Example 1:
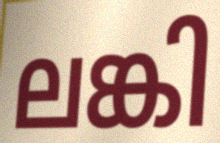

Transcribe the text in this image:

ലങ്കി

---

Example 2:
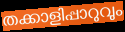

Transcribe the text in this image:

തക്കാളിപ്പാറുവും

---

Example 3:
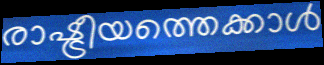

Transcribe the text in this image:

രാഷ്ട്രീയത്തെക്കാൾ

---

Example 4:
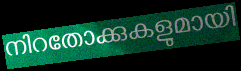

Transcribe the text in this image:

നിറതോക്കുകളുമായി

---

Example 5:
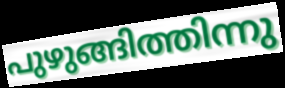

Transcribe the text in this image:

പുഴുങ്ങിത്തിന്നു